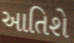
આતિશે